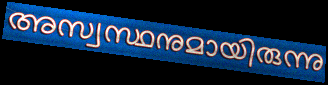
അസ്വസ്ഥനുമായിരുന്നു